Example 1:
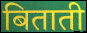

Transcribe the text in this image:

बिताती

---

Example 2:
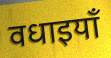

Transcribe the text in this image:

वधाइयाँ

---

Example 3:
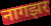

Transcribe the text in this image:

नागझर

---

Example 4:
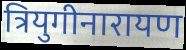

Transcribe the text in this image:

त्रियुगीनारायण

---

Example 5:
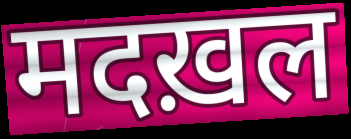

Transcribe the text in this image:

मदख़ल